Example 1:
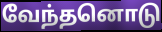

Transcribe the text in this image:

வேந்தனொடு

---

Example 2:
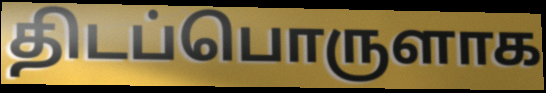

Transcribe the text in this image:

திடப்பொருளாக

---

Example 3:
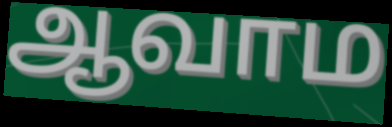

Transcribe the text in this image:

ஆவாம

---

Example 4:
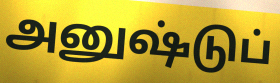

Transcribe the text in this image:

அனுஷ்டுப்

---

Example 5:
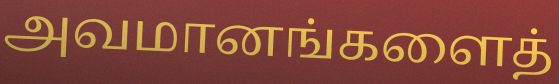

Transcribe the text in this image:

அவமானங்களைத்